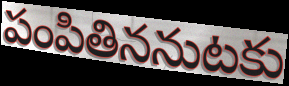
పంపితిననుటకు